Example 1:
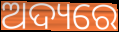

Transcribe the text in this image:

ଅଦ୍ୟରେ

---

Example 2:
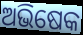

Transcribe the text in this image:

ଅଭିଷେକ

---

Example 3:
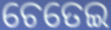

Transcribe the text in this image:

ଚେତେଇ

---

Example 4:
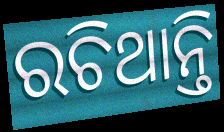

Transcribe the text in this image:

ରଚିଥାନ୍ତି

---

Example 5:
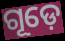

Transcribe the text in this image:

ଗୂଡ଼େ